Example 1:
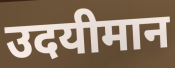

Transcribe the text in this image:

उदयीमान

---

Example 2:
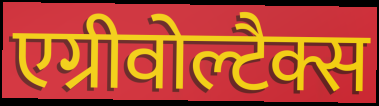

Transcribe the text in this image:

एग्रीवोल्टैक्स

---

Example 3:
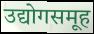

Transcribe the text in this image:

उद्योगसमूह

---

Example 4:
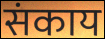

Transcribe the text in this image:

संकाय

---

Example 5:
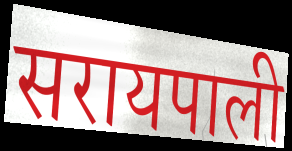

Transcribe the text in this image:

सरायपाली